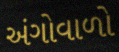
અંગોવાળો